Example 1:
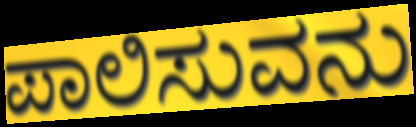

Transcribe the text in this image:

ಪಾಲಿಸುವನು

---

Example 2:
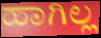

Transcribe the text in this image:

ಹಾಗಿಲ್ಲ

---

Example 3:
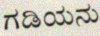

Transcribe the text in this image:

ಗಡಿಯನು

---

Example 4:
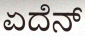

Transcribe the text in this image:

ಏದೆನ್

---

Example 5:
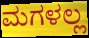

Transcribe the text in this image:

ಮಗಳಲ್ಲ